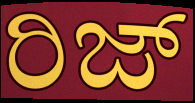
ರಿಜ್